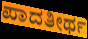
ಪಾದತೀರ್ಥ